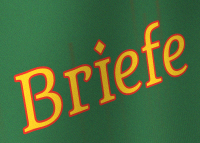
Briefe